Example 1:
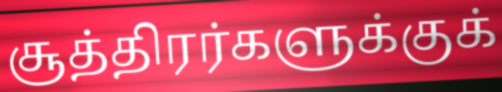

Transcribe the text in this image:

சூத்திரர்களுக்குக்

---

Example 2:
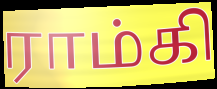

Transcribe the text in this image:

ராம்கி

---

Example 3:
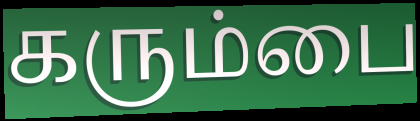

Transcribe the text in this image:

கரும்பை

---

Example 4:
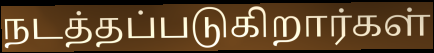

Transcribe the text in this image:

நடத்தப்படுகிறார்கள்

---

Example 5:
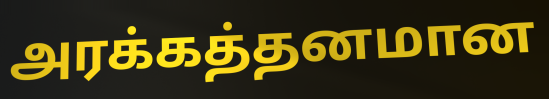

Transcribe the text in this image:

அரக்கத்தனமான